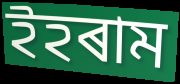
ইহৰাম